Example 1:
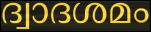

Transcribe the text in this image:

ദ്വാദശമം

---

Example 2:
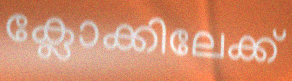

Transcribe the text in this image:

ക്ലോക്കിലേക്ക്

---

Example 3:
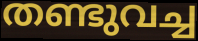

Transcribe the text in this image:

തണ്ടുവച്ച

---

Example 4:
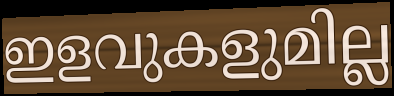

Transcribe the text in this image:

ഇളവുകളുമില്ല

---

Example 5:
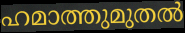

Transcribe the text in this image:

ഹമാത്തുമുതൽ